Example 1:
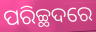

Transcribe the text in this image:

ପରିଚ୍ଛଦରେ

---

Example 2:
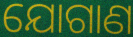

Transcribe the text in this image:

ଯୋଗାଣ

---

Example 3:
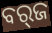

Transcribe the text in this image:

ବର୍‌ଜ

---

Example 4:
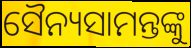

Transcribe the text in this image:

ସୈନ୍ୟସାମନ୍ତଙ୍କୁ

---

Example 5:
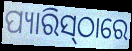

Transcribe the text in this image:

ପ୍ୟାରିସ୍‍ଠାରେ